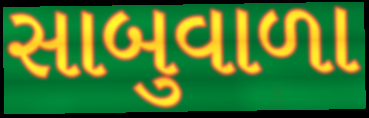
સાબુવાળા